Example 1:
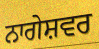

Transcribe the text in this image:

ਨਾਗੇਸ਼ਵਰ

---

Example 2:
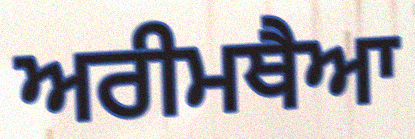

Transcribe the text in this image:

ਅਰੀਮਥੈਆ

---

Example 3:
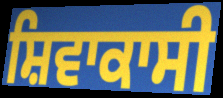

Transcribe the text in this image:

ਸ਼ਿਵਾਕਾਸੀ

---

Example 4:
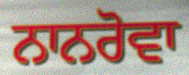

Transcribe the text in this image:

ਨਾਨਰੋਵਾ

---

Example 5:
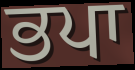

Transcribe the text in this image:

ਭਪਾ